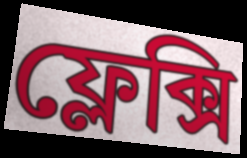
ফ্লেক্সি